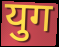
युग